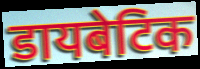
डायबेटिक